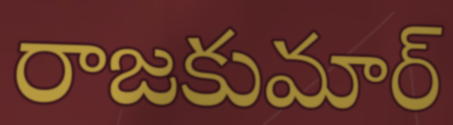
రాజకుమార్